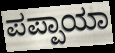
ಪಪ್ಪಾಯಾ